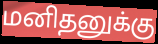
மனிதனுக்கு